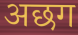
अछग